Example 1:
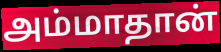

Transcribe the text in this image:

அம்மாதான்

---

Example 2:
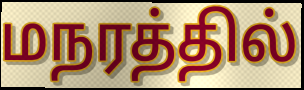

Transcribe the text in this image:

மநரத்தில்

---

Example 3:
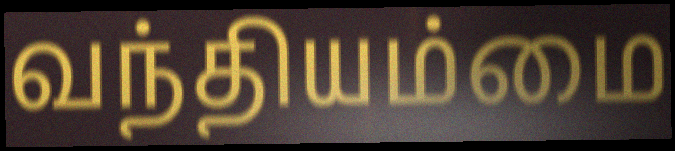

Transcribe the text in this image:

வந்தியம்மை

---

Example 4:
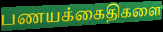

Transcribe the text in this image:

பணயக்கைதிகளை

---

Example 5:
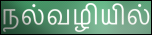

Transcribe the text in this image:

நல்வழியில்